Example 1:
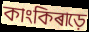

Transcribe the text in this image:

কাংকিৰাড়ে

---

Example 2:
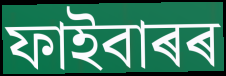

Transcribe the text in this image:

ফাইবাৰৰ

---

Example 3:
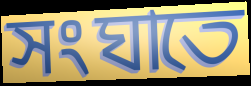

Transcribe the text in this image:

সংঘাতে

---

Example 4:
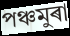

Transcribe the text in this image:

পঞ্চমুৰা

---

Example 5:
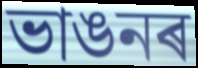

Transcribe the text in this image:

ভাঙনৰ